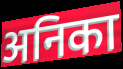
अनिका